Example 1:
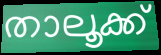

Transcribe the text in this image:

താലൂക്ക്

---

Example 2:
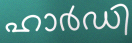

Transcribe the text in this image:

ഹാർഡി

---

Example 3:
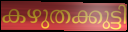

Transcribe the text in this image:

കഴുതക്കുട്ടി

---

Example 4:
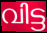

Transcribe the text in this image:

വിട്ട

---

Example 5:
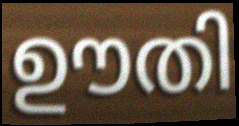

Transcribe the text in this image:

ഊതി